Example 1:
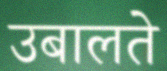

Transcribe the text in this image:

उबालते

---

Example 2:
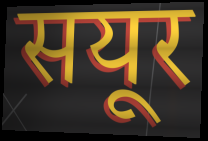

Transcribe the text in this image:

सयूर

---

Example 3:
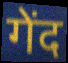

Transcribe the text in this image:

गेंद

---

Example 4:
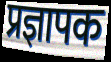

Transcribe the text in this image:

प्रज्ञापक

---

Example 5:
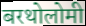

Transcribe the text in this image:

बरथोलोमी